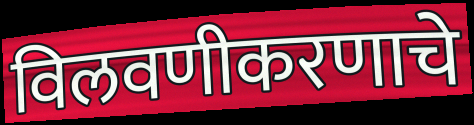
विलवणीकरणाचे